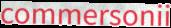
commersonii